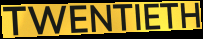
TWENTIETH